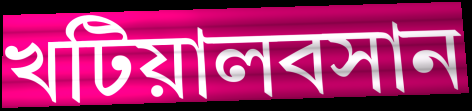
খটিয়ালবসান